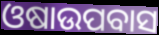
ଓଷାଉପବାସ